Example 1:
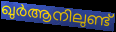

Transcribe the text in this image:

ഖുർആനിലുണ്ട്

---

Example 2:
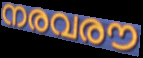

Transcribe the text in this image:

നരവരൗ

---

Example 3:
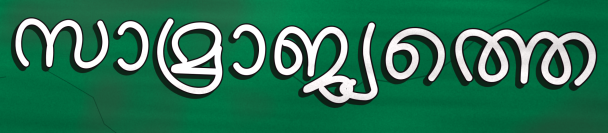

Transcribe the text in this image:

സാമ്രാജ്യത്തെ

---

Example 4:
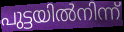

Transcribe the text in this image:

പുട്ടയിൽനിന്ന്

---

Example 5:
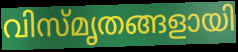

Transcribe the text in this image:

വിസ്മൃതങ്ങളായി